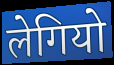
लेगियो